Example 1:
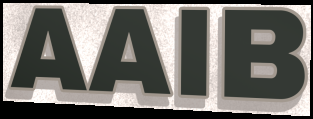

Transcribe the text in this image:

AAIB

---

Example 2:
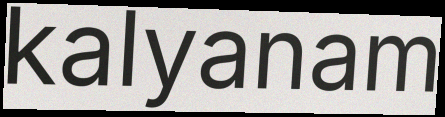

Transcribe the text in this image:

kalyanam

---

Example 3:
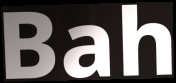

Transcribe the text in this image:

Bah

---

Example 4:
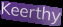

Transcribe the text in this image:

Keerthy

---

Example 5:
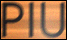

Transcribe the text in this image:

PIU